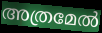
അത്രമേൽ